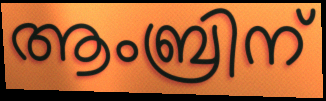
ആംബ്രിന്